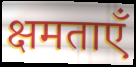
क्षमताएँ